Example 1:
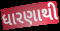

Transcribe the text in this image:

ધારણાથી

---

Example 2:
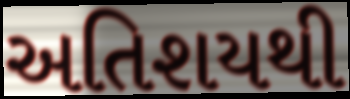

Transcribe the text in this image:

અતિશયથી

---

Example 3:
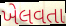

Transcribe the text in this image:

ખેલવતા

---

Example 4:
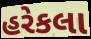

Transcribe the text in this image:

હરેકલા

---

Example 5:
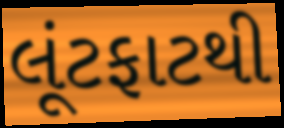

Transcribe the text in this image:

લૂંટફાટથી